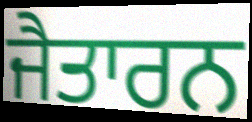
ਜੈਤਾਰਨ